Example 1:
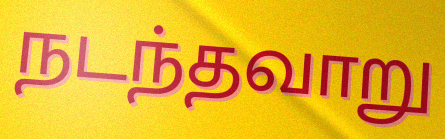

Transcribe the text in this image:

நடந்தவாறு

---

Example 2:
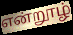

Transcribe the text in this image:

என்றூழ்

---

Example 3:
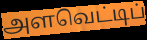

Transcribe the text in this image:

அளவெட்டிப்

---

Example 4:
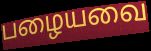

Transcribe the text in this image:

பழையவை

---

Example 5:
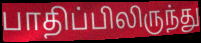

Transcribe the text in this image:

பாதிப்பிலிருந்து